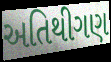
અતિથીગણ